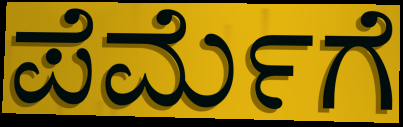
ಪೆರ್ಮೆಗೆ